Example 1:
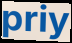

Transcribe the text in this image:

priy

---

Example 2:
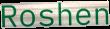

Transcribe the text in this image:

Roshen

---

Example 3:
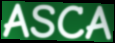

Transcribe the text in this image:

ASCA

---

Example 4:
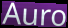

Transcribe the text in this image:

Auro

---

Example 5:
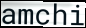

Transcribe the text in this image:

amchi